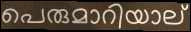
പെരുമാറിയാല്